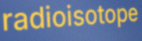
radioisotope